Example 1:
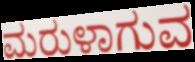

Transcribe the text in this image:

ಮರುಳಾಗುವ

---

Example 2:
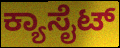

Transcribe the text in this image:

ಕ್ಯಾಸೈಟ್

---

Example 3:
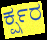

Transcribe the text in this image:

ರ್ಕ್ಷರ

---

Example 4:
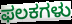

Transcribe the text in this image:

ಫಲಕಗಳು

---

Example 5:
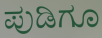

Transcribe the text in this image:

ಪುಡಿಗೂ